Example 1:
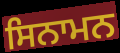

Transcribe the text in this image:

ਸਿਨਾਮਨ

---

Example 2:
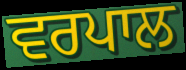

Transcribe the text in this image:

ਵਰਪਾਲ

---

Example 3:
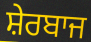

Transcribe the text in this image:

ਸ਼ੇਰਬਾਜ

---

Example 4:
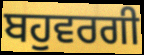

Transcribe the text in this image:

ਬਹੁਵਰਗੀ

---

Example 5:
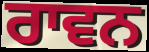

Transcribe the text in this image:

ਰਾਵਨ